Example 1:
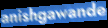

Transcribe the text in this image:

anishgawande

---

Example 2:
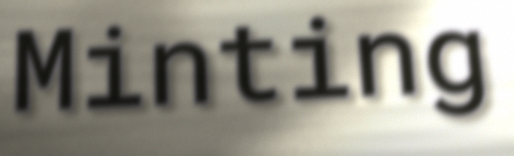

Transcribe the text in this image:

Minting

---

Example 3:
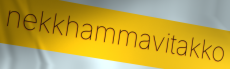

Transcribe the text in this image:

nekkhammavitakko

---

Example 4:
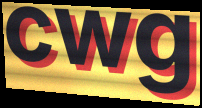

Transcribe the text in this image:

cwg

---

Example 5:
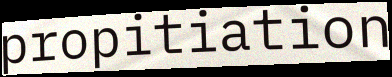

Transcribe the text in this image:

propitiation